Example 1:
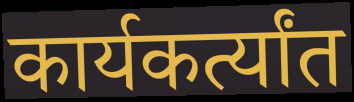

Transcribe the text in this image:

कार्यकर्त्यांत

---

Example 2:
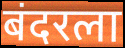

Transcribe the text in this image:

बंदरला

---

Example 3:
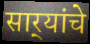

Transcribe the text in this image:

सार्यांचे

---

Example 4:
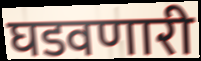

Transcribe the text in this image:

घडवणारी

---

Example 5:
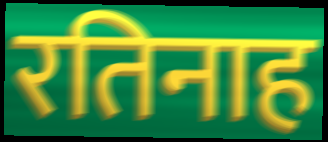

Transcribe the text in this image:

रतिनाह